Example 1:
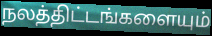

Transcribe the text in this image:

நலத்திட்டங்களையும்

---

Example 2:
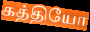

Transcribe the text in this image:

கத்தியோ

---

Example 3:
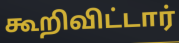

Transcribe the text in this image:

கூறிவிட்டார்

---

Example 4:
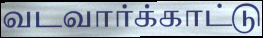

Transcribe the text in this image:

வடவார்க்காட்டு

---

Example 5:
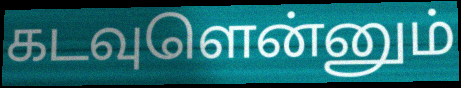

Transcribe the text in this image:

கடவுளென்னும்